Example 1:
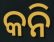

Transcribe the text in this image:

କନି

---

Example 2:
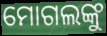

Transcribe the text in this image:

ମୋଗଲଙ୍କୁ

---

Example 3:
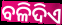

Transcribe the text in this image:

ବଳିଦିଏ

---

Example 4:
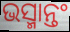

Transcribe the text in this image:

ଭସ୍ମାନ୍ତଂ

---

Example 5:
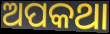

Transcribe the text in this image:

ଅପକଥା